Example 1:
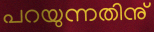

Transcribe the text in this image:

പറയുന്നതിനു്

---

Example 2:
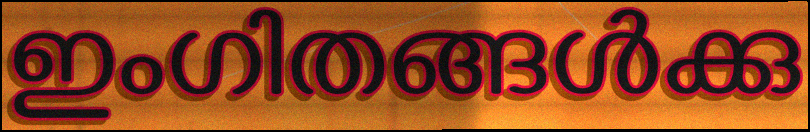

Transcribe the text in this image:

ഇംഗിതങ്ങൾക്കു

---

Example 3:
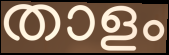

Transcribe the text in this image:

താളം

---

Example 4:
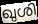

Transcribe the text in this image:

ഖുശി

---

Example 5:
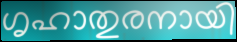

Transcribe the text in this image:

ഗൃഹാതുരനായി